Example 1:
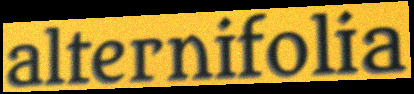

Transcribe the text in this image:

alternifolia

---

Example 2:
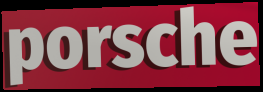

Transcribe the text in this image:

porsche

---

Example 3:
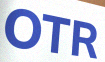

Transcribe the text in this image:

OTR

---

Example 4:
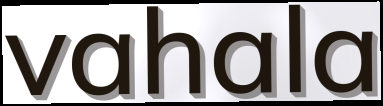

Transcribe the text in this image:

vahala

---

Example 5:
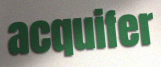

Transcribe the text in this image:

acquifer